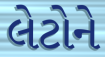
લેટોને